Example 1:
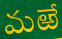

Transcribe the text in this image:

మఱే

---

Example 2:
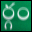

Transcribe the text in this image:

ర్గం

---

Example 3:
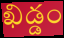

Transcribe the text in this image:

ఖిడ్డం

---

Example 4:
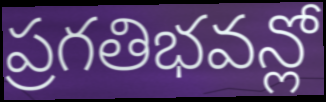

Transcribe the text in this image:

ప్రగతిభవన్లో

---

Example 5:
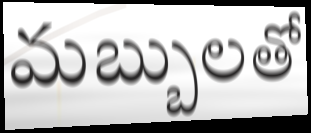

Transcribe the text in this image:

మబ్బులతో